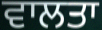
ਵਾਲਤਾ